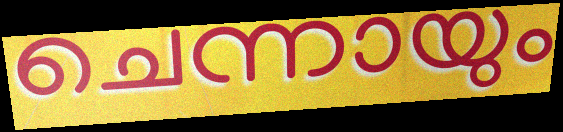
ചെന്നായും